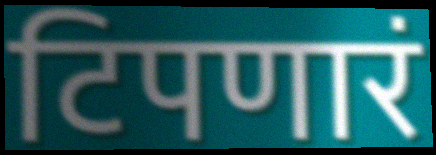
टिपणारं